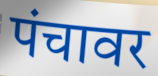
पंचावर